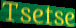
Tsetse